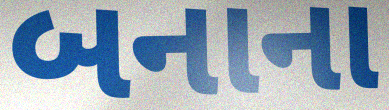
બનાના